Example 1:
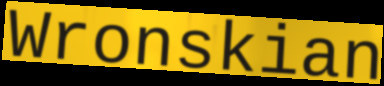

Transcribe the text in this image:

Wronskian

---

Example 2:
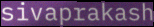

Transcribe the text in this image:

sivaprakash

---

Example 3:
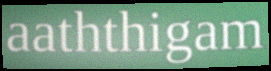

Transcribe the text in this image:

aaththigam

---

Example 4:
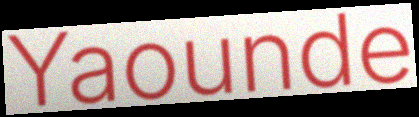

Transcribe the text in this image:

Yaounde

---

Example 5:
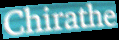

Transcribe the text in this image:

Chirathe